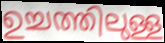
ഉച്ചത്തിലുള്ള